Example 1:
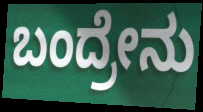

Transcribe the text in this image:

ಬಂದ್ರೇನು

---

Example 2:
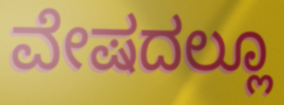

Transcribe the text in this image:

ವೇಷದಲ್ಲೂ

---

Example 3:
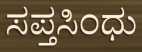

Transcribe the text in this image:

ಸಪ್ತಸಿಂಧು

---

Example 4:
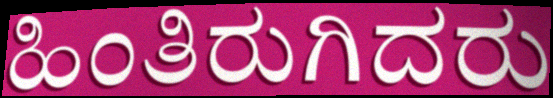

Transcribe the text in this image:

ಹಿಂತಿರುಗಿದರು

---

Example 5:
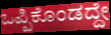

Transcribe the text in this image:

ಒಪ್ಪಿಕೊಂಡದ್ದೇ